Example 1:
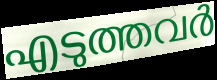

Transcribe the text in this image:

എടുത്തവർ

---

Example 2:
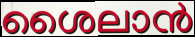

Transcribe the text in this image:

ശൈലാൻ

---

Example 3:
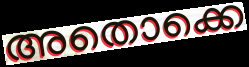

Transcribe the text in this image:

അതൊക്കെ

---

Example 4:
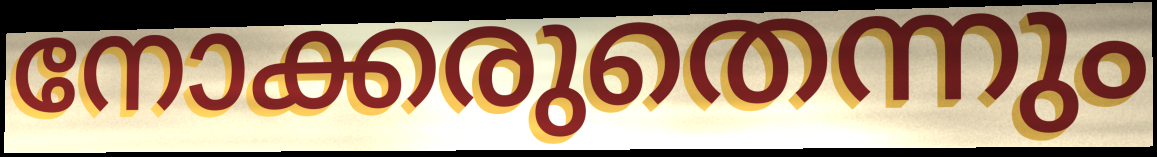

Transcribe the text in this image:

നോക്കരുതെന്നും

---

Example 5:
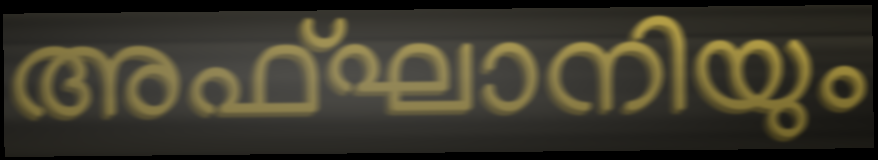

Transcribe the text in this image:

അഫ്ഘാനിയും